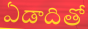
ఏడాదితో